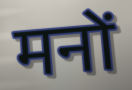
मनों